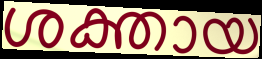
ശക്തായ